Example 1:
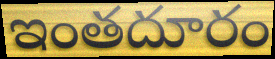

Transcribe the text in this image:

ఇంతదూరం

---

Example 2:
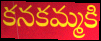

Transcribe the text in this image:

కనకమ్మకి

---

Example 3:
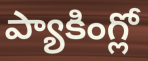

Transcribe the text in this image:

ప్యాకింగ్లో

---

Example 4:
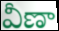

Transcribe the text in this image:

వీణా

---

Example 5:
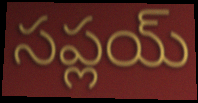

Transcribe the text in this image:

సప్లయ్